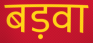
बड़वा